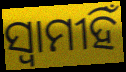
ସ୍ଵାମୀହିଁ